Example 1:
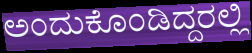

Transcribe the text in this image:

ಅಂದುಕೊಂಡಿದ್ದರಲ್ಲಿ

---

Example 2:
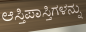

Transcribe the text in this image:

ಆಸ್ತಿಪಾಸ್ತಿಗಳನ್ನು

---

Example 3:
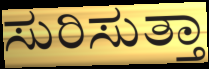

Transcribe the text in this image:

ಸುರಿಸುತ್ತಾ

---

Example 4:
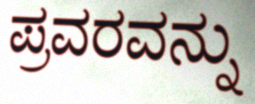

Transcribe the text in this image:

ಪ್ರವರವನ್ನು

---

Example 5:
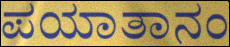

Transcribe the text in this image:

ಪಯಾತಾನಂ